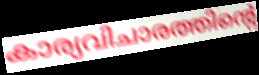
കാര്യവിചാരത്തിന്റെ